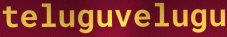
teluguvelugu